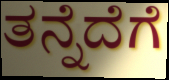
ತನ್ನೆದೆಗೆ